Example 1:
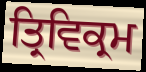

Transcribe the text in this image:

ਤ੍ਰਿਵਿਕ੍ਰਮ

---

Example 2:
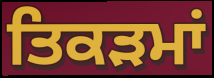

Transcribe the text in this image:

ਤਿਕੜਮਾਂ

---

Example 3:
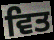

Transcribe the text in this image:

ਵਿਤ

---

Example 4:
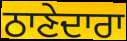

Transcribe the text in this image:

ਠਾਣੇਦਾਰਾ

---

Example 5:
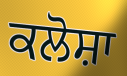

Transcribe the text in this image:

ਕਲੋਸ਼ਾ